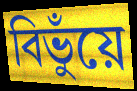
বিভুঁয়ে